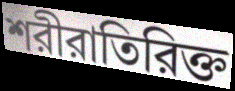
শরীরাতিরিক্ত